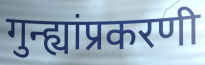
गुन्ह्यांप्रकरणी